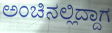
ಅಂಚಿನಲ್ಲಿದ್ದಾಗ